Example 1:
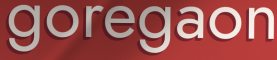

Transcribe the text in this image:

goregaon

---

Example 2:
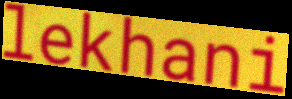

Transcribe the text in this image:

lekhani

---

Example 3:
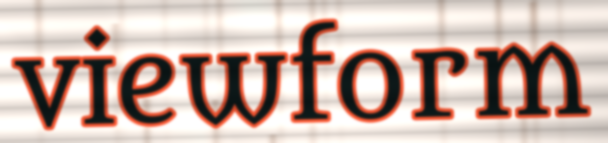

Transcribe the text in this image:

viewform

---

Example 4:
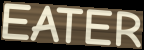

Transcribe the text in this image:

EATER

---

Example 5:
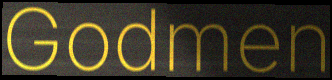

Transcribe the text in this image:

Godmen